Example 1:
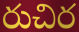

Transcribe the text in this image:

రుచిర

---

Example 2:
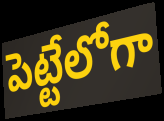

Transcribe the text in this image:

పెట్టేలోగా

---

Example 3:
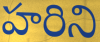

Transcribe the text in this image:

హరిని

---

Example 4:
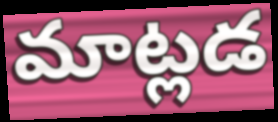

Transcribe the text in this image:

మాట్లడ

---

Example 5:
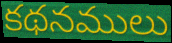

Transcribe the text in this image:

కథనములు